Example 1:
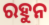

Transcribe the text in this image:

ରହୁନ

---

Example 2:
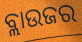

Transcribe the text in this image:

ବ୍ଲାଉଜର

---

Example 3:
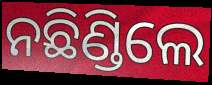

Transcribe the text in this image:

ନଛିଣ୍ଡିଲେ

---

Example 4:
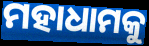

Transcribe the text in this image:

ମହାଧାମକୁ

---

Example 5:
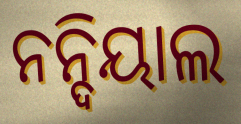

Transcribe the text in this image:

ନନ୍ଦିୟାଲ